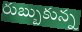
రుబ్బుకున్న